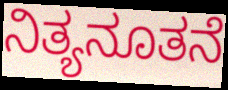
ನಿತ್ಯನೂತನೆ